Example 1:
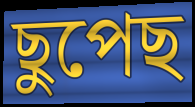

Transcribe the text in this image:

ছুপেছ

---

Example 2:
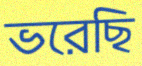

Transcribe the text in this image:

ভরেছি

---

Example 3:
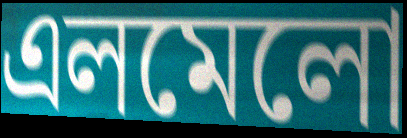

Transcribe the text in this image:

এলমেলো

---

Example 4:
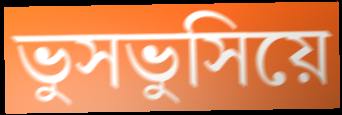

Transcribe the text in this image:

ভুসভুসিয়ে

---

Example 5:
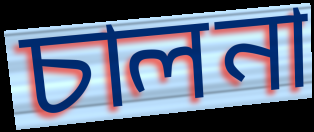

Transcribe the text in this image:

চালনা